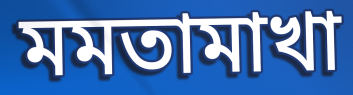
মমতামাখা